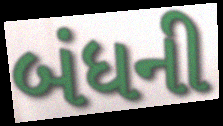
બંધની